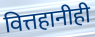
वित्तहानीही